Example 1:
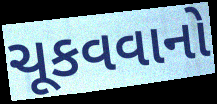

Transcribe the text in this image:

ચૂકવવાનો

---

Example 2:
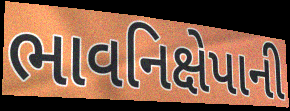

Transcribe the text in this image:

ભાવનિક્ષેપાની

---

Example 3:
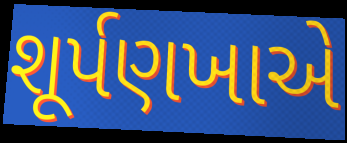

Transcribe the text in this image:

શૂર્પણખાએ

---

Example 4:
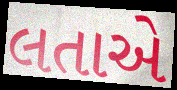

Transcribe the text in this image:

લતાએ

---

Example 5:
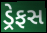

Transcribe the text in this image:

ડ્રેફસ